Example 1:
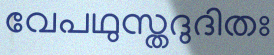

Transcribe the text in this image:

വേപഥുസ്തദുദിതഃ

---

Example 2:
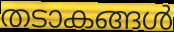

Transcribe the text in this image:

തടാകങ്ങൾ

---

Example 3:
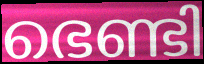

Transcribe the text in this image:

ഭെണ്ടി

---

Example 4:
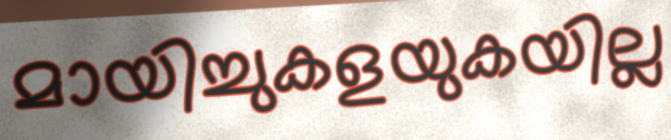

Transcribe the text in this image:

മായിച്ചുകളയുകയില്ല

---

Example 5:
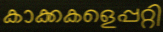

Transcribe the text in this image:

കാക്കകളെപ്പറ്റി